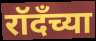
रॉदँच्या